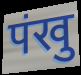
पंखु